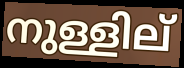
നുള്ളില്